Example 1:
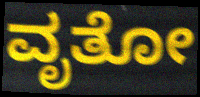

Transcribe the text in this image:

ವೃತೋ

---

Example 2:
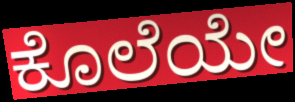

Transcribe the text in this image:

ಕೊಲೆಯೇ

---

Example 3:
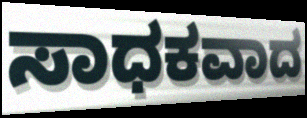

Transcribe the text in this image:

ಸಾಧಕವಾದ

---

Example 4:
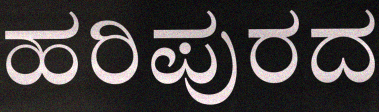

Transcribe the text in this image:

ಹರಿಪುರದ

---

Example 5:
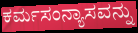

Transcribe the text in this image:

ಕರ್ಮಸಂನ್ಯಾಸವನ್ನು